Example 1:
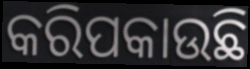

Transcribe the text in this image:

କରିପକାଉଛି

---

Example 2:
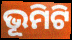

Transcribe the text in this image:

ଭୂମିଟି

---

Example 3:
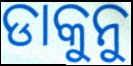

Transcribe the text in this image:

ଡାକୁନୁ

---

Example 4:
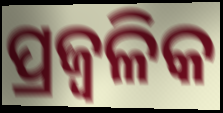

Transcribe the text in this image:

ପ୍ରଜ୍ଵଳିକ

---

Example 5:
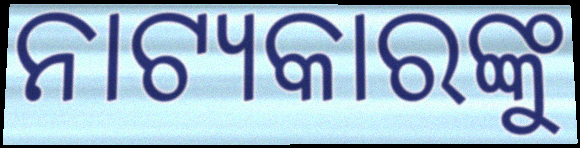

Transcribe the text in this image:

ନାଟ୍ୟକାରଙ୍କୁ